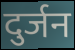
दुर्जन